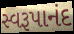
સ્વરૂપાનંદ